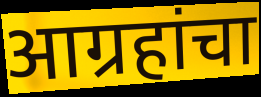
आग्रहांचा